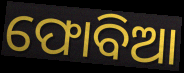
ଫୋବିଆ